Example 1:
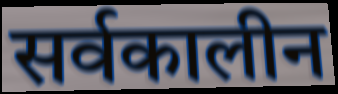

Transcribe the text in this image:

सर्वकालीन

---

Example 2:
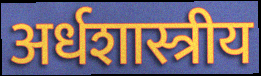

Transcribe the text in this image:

अर्धशास्त्रीय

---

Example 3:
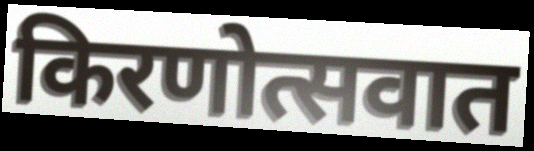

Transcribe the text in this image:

किरणोत्सवात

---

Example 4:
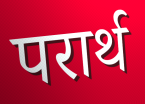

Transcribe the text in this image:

परार्थ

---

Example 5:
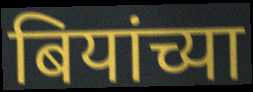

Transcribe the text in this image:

बियांच्या